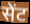
सेंट